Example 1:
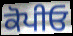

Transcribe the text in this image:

ਕੋਪੀਓ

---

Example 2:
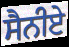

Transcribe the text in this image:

ਸੈਨੀਏ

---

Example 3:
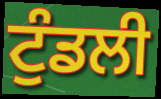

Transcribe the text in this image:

ਟੁੰਡਲੀ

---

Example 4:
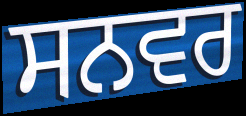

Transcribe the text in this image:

ਸਨਵਰ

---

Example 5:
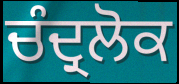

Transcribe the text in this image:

ਚੰਦ੍ਰਲੋਕ